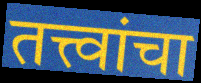
तत्त्वांचा